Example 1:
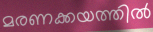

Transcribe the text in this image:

മരണക്കയത്തിൽ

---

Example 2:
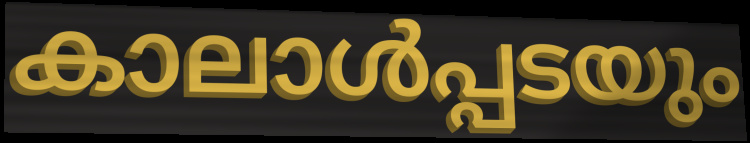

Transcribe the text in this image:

കാലാൾപ്പടയും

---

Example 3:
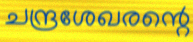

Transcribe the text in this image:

ചന്ദ്രശേഖരന്റെ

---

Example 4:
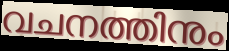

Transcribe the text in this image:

വചനത്തിനും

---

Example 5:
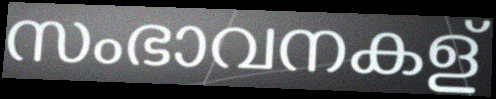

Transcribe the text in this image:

സംഭാവനകള്